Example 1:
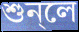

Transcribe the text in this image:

শুন্লে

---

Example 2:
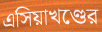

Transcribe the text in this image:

এসিয়াখণ্ডের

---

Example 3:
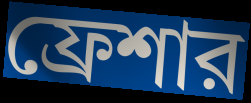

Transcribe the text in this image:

ফ্রেশার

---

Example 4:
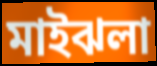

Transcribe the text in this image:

মাইঝলা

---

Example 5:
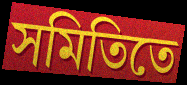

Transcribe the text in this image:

সমিতিতে